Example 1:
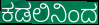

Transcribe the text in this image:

ಕಡಲಿನಿಂದ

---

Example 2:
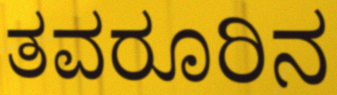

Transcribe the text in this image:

ತವರೂರಿನ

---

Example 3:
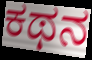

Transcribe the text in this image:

ಕಥನ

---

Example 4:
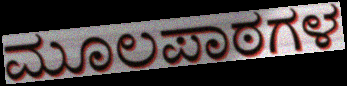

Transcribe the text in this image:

ಮೂಲಪಾಠಗಳ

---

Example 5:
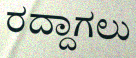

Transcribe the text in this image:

ರದ್ದಾಗಲು